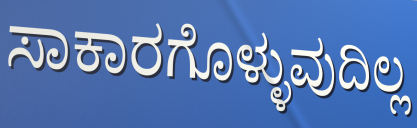
ಸಾಕಾರಗೊಳ್ಳುವುದಿಲ್ಲ